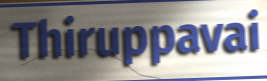
Thiruppavai